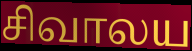
சிவாலய